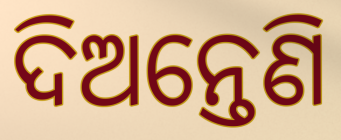
ଦିଅନ୍ତେଣି